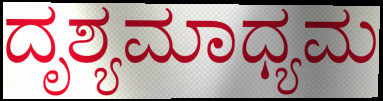
ದೃಶ್ಯಮಾಧ್ಯಮ